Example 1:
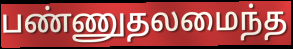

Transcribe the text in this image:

பண்ணுதலமைந்த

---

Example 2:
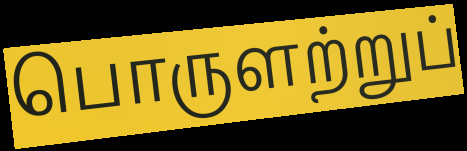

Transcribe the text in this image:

பொருளற்றுப்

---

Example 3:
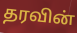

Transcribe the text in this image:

தரவின்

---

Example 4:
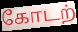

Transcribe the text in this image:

கோடற்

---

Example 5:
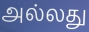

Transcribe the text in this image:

அல்லது